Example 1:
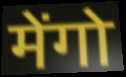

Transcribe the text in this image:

मेंगो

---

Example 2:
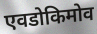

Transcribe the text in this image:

एवडोकिमोव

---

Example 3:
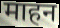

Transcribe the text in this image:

माहन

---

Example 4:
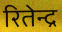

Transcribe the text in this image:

रितेन्द्र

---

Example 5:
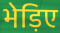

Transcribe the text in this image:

भेड़िए